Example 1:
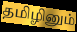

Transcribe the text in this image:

தமிழினும்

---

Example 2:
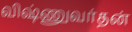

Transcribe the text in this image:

விஷ்ணுவர்தன்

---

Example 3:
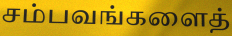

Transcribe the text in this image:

சம்பவங்களைத்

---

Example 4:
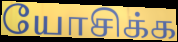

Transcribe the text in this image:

யோசிக்க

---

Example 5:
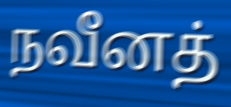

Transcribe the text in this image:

நவீனத்